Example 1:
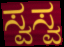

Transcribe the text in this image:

ಸ್ವಸ್ವ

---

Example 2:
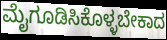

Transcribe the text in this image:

ಮೈಗೂಡಿಸಿಕೊಳ್ಳಬೇಕಾದ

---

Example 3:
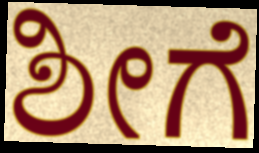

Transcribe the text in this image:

ಶೀಗೆ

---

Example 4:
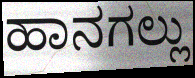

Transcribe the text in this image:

ಹಾನಗಲ್ಲು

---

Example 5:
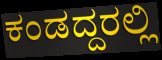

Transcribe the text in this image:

ಕಂಡದ್ದರಲ್ಲಿ